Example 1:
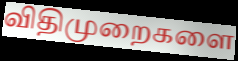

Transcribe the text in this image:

விதிமுறைகளை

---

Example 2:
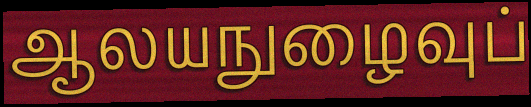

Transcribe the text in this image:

ஆலயநுழைவுப்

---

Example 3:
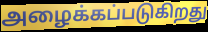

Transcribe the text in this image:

அழைக்கப்படுகிறது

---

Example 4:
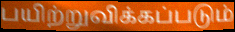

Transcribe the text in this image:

பயிற்றுவிக்கப்படும்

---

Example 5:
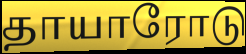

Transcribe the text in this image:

தாயாரோடு